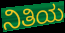
ನಿತಿಯ